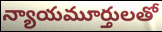
న్యాయమూర్తులతో